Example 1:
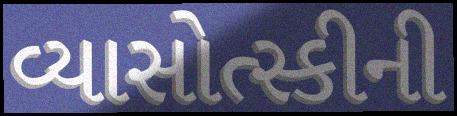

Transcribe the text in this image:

વ્યાસોત્સ્કીની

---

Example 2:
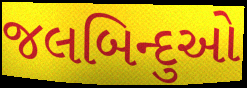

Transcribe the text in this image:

જલબિન્દુઓ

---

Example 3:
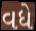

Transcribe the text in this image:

વધે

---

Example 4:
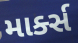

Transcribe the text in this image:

માર્ક્સ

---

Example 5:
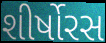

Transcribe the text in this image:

શીર્ષોરસ